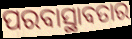
ପରବାସ୍ଥାବତାର